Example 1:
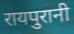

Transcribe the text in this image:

रायपुरानी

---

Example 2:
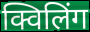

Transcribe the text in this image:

क्विलिंग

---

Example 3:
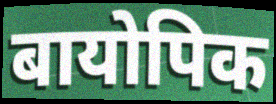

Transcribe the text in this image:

बायोपिक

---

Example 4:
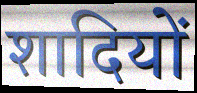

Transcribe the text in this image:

शादियों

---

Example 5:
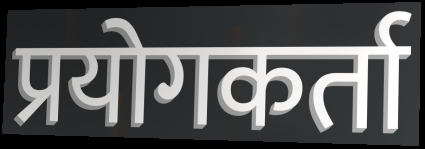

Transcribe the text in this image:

प्रयोगकर्ता